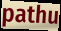
pathu